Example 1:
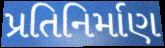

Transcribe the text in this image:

પ્રતિનિર્માણ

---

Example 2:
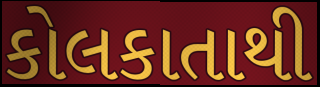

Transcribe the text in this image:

કોલકાતાથી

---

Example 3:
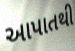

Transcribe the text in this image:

આપાતથી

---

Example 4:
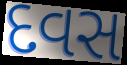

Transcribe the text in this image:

દવસ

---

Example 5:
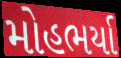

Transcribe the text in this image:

મોહભર્યા